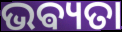
ଭଵ୍ୟତା